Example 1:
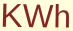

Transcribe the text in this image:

KWh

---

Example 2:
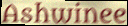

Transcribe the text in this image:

Ashwinee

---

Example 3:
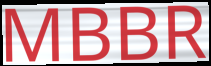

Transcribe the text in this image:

MBBR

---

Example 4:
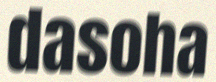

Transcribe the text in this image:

dasoha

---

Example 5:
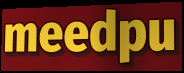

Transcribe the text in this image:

meedpu